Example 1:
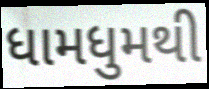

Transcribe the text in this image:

ધામધુમથી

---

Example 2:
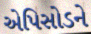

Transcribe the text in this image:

એપિસોડને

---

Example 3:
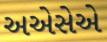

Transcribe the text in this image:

અએસેએ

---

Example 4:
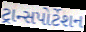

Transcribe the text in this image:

ટ્રાન્સપોર્ટેશન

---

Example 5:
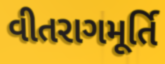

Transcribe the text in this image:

વીતરાગમૂર્તિ